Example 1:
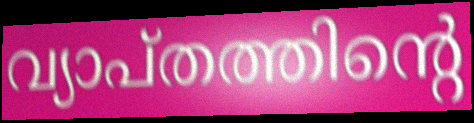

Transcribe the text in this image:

വ്യാപ്തത്തിന്റെ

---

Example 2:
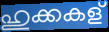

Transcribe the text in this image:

ഹുക്കകള്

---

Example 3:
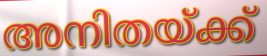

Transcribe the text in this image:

അനിതയ്ക്ക്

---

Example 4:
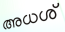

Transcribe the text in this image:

അധശ്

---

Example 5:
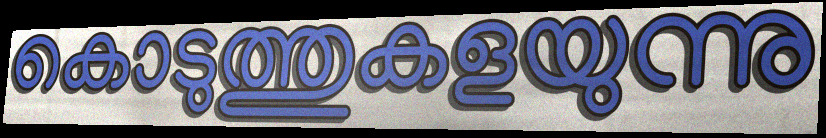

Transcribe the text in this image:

കൊടുത്തുകളയുന്നു